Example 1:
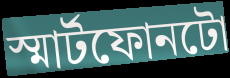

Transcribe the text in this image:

স্মাৰ্টফোনটো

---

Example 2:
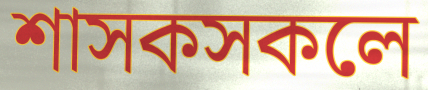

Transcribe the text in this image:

শাসকসকলে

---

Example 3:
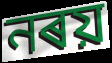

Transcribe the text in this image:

নৰয়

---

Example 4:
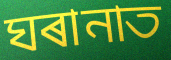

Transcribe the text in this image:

ঘৰানাত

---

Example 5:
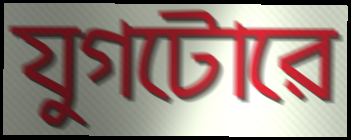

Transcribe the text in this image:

যুগটোৱে